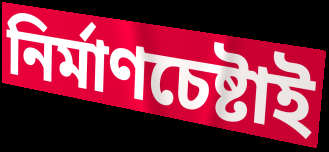
নির্মাণচেষ্টাই